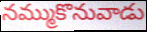
నమ్ముకొనువాడు